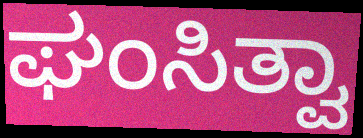
ಘಂಸಿತ್ವಾ